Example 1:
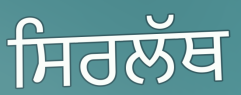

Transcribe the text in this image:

ਸਿਰਲੱਥ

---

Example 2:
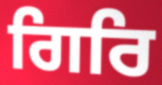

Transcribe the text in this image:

ਗਿਰਿ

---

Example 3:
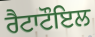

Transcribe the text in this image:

ਰੈਟਾਟੌਇਲ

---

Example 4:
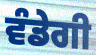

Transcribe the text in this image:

ਵੰਡੇਗੀ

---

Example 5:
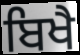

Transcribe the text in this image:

ਬਿਖੈ